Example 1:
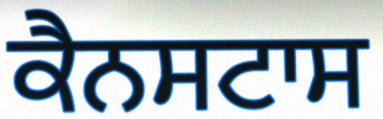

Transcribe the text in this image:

ਕੈਨਸਟਾਸ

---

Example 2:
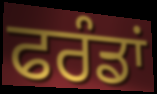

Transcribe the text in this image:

ਫਰੰਡਾਂ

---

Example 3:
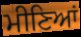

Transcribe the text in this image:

ਮੀਣਿਆਂ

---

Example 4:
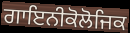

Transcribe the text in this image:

ਗਾਇਨੀਕੋਲੋਜਿਕ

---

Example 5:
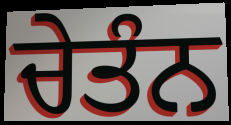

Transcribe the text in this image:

ਚੇਤੰਨ